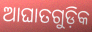
ଆଘାତଗୁଡ଼ିକ